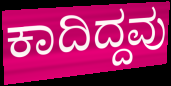
ಕಾದಿದ್ದವು